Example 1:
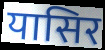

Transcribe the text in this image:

यासिर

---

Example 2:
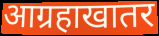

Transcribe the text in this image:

आग्रहाखातर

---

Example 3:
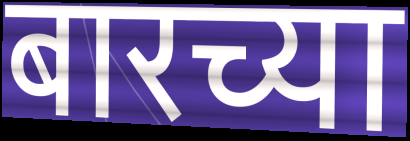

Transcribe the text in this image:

बारच्या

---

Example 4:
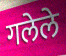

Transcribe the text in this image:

गलेले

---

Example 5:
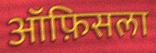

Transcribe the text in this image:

ऑफ़िसला